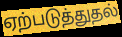
ஏற்படுத்துதல்